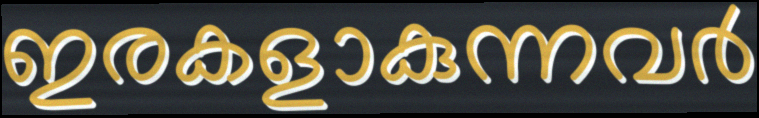
ഇരകളാകുന്നവർ